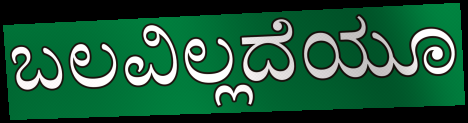
ಬಲವಿಲ್ಲದೆಯೂ